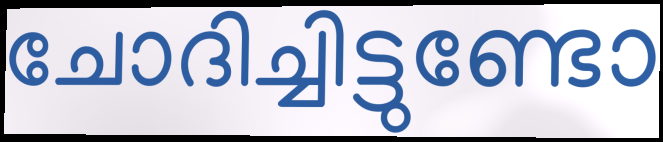
ചോദിച്ചിട്ടുണ്ടോ